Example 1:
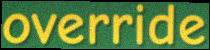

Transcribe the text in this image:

override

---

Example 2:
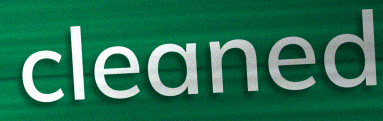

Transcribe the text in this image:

cleaned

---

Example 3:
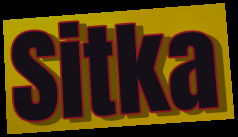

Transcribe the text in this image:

Sitka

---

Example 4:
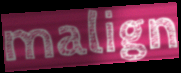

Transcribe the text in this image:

malign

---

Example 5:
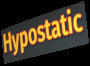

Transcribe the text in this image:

Hypostatic